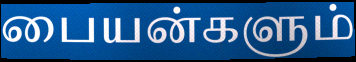
பையன்களும்